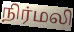
நிர்மலி